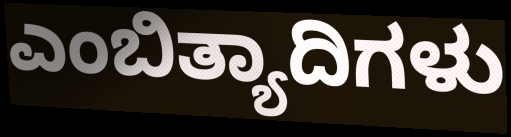
ಎಂಬಿತ್ಯಾದಿಗಳು